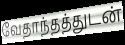
வேதாந்தத்துடன்